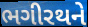
ભગીરથને